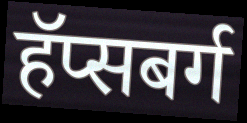
हॅप्सबर्ग